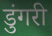
डुंगरी